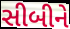
સીબીને